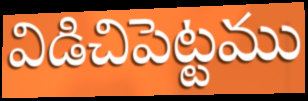
విడిచిపెట్టము